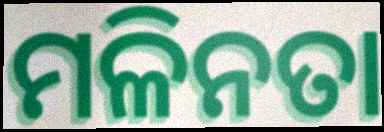
ମଳିନତା